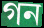
গন